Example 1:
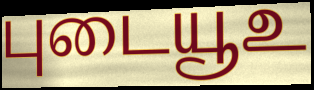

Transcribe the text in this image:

புடையூஉ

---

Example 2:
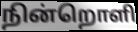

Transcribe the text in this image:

நின்றொளி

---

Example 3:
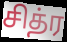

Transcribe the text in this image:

சித்ர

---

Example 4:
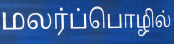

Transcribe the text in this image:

மலர்ப்பொழில்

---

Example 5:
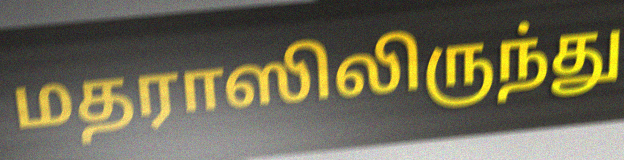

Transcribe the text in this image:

மதராஸிலிருந்து